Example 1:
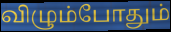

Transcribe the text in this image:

விழும்போதும்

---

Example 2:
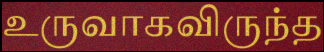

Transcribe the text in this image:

உருவாகவிருந்த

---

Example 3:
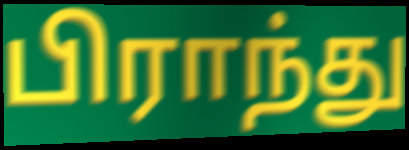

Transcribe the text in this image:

பிராந்து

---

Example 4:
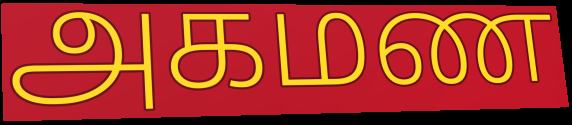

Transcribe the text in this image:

அகமண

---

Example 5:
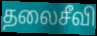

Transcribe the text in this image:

தலைசீவி